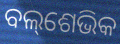
ବଲ୍‌ଶେଭିକ